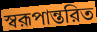
স্বরূপান্তরিত